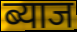
ब्‍याज